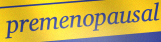
premenopausal